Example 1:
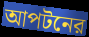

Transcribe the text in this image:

আপটনের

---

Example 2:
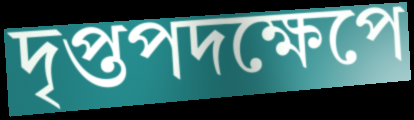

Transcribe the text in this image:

দৃপ্তপদক্ষেপে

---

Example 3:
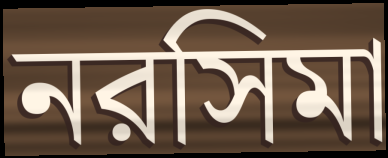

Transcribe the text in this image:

নরসিমা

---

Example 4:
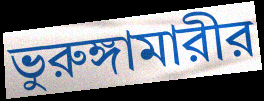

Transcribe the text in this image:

ভুরুঙ্গামারীর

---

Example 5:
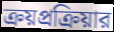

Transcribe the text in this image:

ক্রয়প্রক্রিয়ার